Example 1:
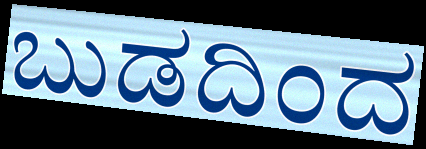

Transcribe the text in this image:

ಬುಡದಿಂದ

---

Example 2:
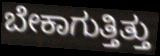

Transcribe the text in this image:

ಬೇಕಾಗುತ್ತಿತ್ತು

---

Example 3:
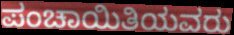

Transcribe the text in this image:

ಪಂಚಾಯಿತಿಯವರು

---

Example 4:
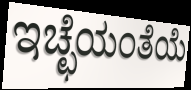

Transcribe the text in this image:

ಇಚ್ಛೆಯಂತೆಯೆ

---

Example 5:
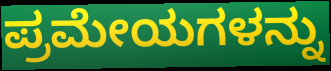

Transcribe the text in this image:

ಪ್ರಮೇಯಗಳನ್ನು